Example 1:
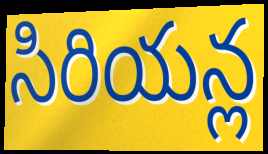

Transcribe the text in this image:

సిరియన్ల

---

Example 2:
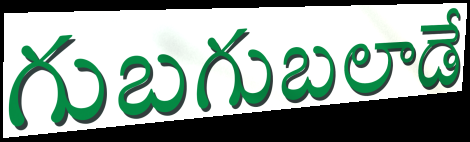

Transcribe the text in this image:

గుబగుబలాడే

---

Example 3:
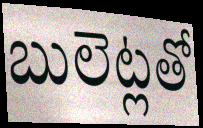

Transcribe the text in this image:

బులెట్లతో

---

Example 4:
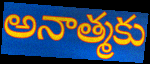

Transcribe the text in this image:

అనాత్మకు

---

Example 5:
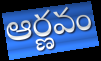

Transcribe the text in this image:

ఆర్ణవం